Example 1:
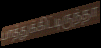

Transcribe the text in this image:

பாத்துக்கிட்டிருந்தா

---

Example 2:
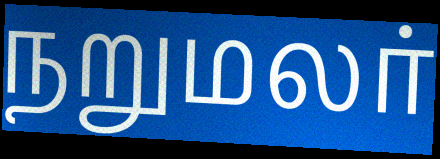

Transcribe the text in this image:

நறுமலர்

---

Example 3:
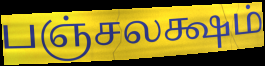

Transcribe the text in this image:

பஞ்சலக்ஷம்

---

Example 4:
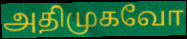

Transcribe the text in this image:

அதிமுகவோ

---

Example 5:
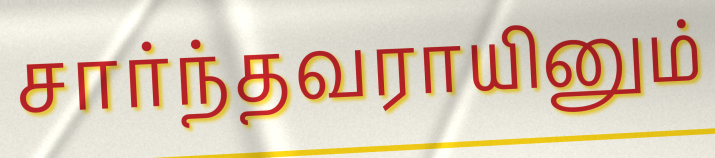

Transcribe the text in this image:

சார்ந்தவராயினும்